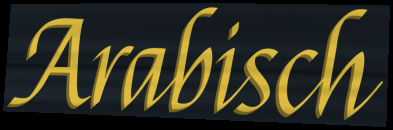
Arabisch